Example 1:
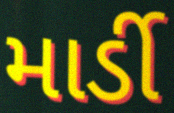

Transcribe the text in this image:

માર્ડી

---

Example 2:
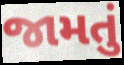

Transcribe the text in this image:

જામતું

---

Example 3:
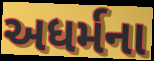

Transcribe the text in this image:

અધર્મના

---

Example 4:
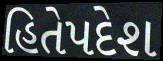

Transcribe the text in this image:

હિતેપદેશ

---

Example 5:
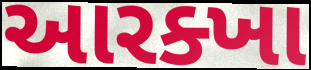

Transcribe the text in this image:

આરક્ખા